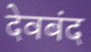
देवबंद